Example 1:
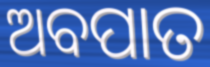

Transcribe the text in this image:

ଅବପାତ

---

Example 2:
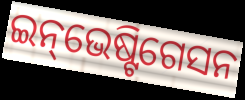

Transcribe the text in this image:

ଇନ୍‌ଭେଷ୍ଟିଗେସନ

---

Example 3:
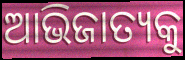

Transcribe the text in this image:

ଆଭିଜାତ୍ୟକୁ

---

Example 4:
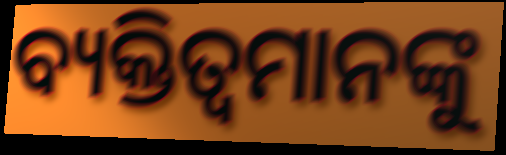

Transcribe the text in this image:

ବ୍ୟକ୍ତିତ୍ବମାନଙ୍କୁ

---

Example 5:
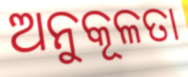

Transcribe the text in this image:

ଅନୁକୂଳତା